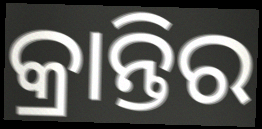
କ୍ରାନ୍ତିର